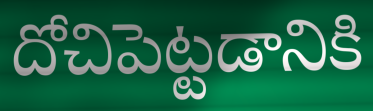
దోచిపెట్టడానికి